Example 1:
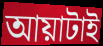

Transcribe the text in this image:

আয়াটাই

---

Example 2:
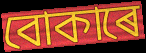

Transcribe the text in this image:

বোকাৰে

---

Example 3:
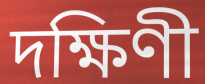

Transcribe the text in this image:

দক্ষিণী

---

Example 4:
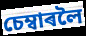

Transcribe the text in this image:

চেম্বাৰলৈ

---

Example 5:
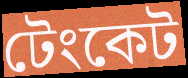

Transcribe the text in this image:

টেংকেট